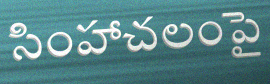
సింహాచలంపై